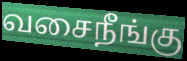
வசைநீங்கு